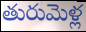
తురుమెళ్ల